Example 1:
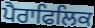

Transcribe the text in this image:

ਪੈਰਾਫਿਲਿਕ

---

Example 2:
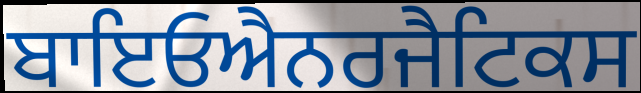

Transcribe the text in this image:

ਬਾਇਓਐਨਰਜੈਟਿਕਸ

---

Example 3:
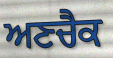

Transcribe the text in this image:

ਅਣਚੈਕ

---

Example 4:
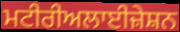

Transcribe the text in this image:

ਮਟੀਰੀਅਲਾਈਜ਼ੇਸ਼ਨ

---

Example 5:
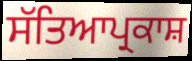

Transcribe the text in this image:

ਸੱਤਿਆਪ੍ਰਕਾਸ਼